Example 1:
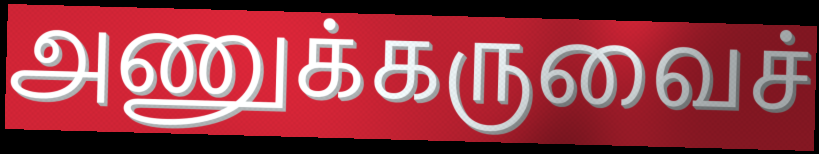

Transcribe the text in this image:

அணுக்கருவைச்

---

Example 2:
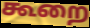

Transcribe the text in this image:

கூறை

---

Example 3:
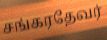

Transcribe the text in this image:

சங்கரதேவர்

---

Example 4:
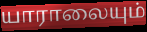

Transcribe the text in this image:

யாராலையும்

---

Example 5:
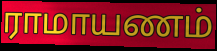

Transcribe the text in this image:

ராமாயணம்